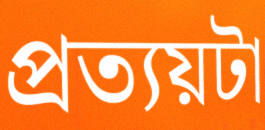
প্রত্যয়টা